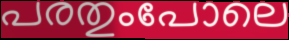
പരതുംപോലെ